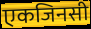
एकजिनसी